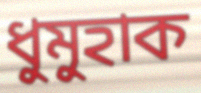
ধুমুহাক